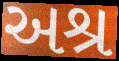
અશ્ર